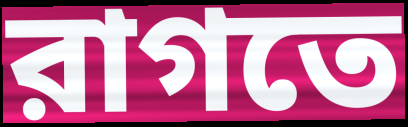
রাগতে